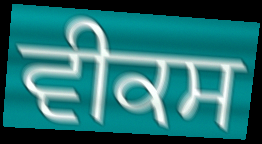
ਵੀਕਸ